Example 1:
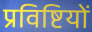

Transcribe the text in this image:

प्रविष्टियों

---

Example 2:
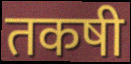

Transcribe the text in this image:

तकषी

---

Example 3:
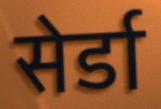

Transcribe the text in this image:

सेर्डा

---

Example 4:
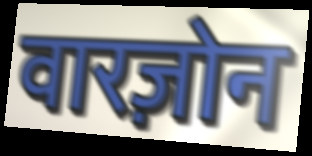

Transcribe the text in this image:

वारज़ोन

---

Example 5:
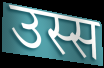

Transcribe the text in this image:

उस्स